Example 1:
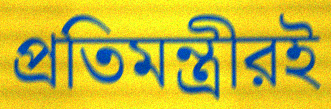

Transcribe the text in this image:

প্রতিমন্ত্রীরই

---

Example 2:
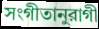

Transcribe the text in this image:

সংগীতানুরাগী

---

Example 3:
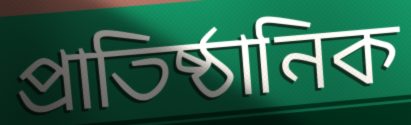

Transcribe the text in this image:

প্রাতিষ্ঠানিক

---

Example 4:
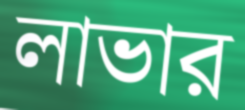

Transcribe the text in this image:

লাভার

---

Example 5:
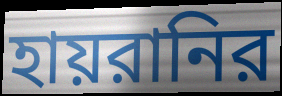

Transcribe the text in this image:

হায়রানির